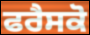
ਫਰੈਸਕੋ